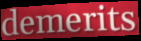
demerits